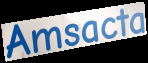
Amsacta